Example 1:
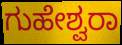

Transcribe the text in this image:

ಗುಹೇಶ್ವರಾ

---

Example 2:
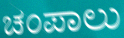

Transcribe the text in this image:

ಚಂಪಾಲು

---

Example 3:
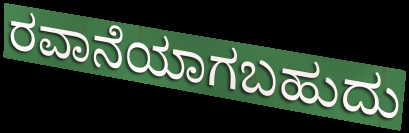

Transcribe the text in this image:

ರವಾನೆಯಾಗಬಹುದು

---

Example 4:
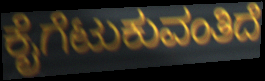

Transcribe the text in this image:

ಕೈಗೆಟುಕುವಂತಿದೆ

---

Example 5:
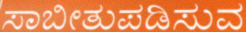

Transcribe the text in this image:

ಸಾಬೀತುಪಡಿಸುವ